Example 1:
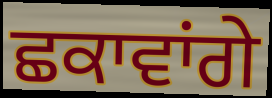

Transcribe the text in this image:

ਛਕਾਵਾਂਗੇ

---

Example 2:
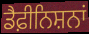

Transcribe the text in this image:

ਡੈਫ਼ੀਨਿਸ਼ਨਾਂ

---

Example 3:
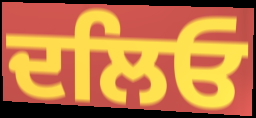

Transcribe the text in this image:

ਦਲਿਓ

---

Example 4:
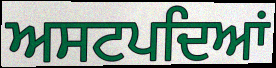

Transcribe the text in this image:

ਅਸਟਪਦਿਆਂ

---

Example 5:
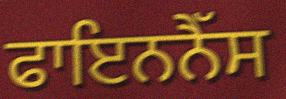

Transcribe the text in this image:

ਫਾਇਨਨੈੱਸ